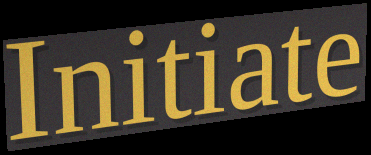
Initiate